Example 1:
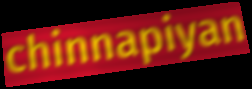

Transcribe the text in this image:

chinnapiyan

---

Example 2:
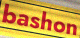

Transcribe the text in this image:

bashon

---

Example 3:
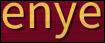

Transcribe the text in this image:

enye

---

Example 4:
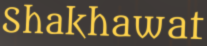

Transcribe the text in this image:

Shakhawat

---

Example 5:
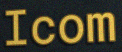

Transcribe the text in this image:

Icom